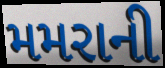
મમરાની